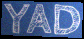
YAD